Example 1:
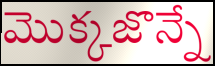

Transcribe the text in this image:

మొక్కజొన్నే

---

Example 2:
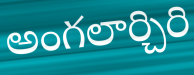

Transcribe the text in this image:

అంగలార్చిరి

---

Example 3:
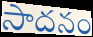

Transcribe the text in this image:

సాదనం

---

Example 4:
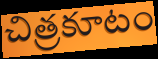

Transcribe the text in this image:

చిత్రకూటం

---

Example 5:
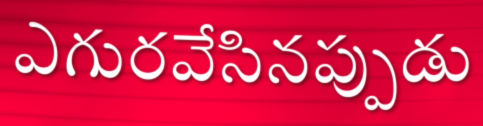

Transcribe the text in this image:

ఎగురవేసినప్పుడు